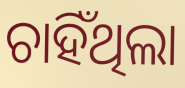
ଚାହିଁଥିଲା